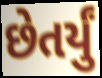
છેતર્યું